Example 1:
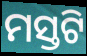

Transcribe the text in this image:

ମସ୍ତଟି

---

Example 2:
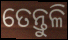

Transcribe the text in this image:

ତେନ୍ତୁଳି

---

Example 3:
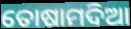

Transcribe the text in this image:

ତୋଷାମଦିଆ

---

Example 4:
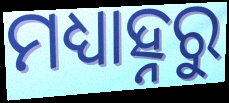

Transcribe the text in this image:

ମଧ୍ୟାହ୍ନରୁ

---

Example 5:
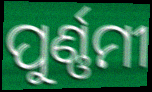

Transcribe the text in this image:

ପୁର୍ଣ୍ଣମୀ